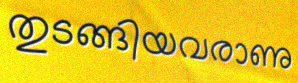
തുടങ്ങിയവരാണു